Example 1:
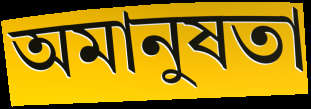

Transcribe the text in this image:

অমানুষতা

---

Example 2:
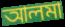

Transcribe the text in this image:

আলমা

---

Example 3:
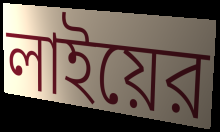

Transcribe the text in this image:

লাইয়ের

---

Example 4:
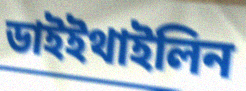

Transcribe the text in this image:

ডাইইথাইলিন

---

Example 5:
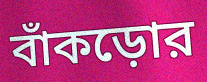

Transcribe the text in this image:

বাঁকড়োর